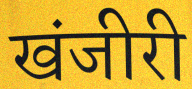
खंजीरी